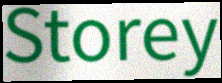
Storey